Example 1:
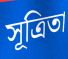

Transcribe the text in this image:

সূত্রিতা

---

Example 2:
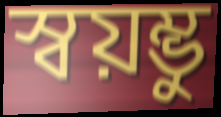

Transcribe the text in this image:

স্বয়ম্ভু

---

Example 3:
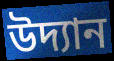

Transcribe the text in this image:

উদ্যান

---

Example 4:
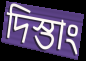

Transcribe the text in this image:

দিস্তাং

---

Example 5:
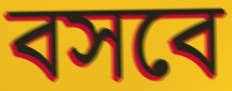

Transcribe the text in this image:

বসবে